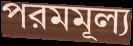
পরমমূল্য